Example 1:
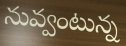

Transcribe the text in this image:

నువ్వంటున్న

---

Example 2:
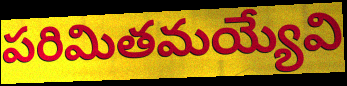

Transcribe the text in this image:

పరిమితమయ్యేవి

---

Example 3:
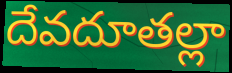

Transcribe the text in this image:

దేవదూతల్లా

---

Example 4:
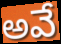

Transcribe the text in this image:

అవే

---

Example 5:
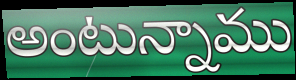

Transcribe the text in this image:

అంటున్నాము